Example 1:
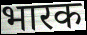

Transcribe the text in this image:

भारक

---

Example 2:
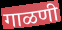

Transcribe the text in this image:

गाळणी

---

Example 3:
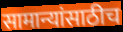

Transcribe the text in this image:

सामान्यांसाठीच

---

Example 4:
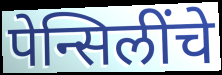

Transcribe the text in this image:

पेन्सिलींचे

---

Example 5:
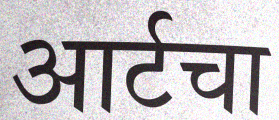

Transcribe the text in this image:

आर्टचा